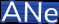
ANe